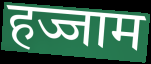
हज्जाम